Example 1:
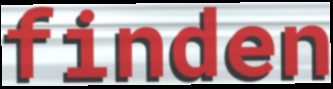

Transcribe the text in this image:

finden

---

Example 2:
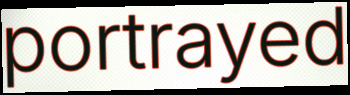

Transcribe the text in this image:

portrayed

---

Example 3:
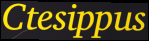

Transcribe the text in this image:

Ctesippus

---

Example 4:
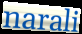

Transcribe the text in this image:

narali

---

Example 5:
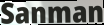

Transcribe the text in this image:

Sanman